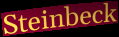
Steinbeck